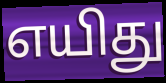
எயிது